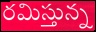
రమిస్తున్న